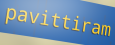
pavittiram